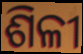
ଶିଳୀ